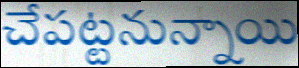
చేపట్టనున్నాయి